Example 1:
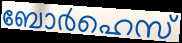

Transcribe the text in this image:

ബോർഹെസ്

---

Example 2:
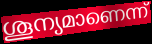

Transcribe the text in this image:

ശൂന്യമാണെന്ന്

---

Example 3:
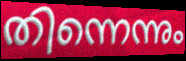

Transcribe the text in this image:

തിന്നെന്നും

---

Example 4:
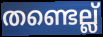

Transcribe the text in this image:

തണ്ടെല്ല്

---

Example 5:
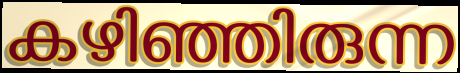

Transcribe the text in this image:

കഴിഞ്ഞിരുന്ന